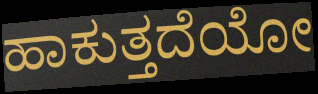
ಹಾಕುತ್ತದೆಯೋ